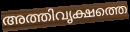
അത്തിവൃക്ഷത്തെ